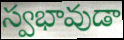
స్వభావుడా